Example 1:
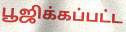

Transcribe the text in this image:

பூஜிக்கப்பட்ட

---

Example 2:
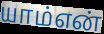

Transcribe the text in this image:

யாம்என்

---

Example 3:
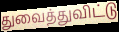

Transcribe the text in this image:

துவைத்துவிட்டு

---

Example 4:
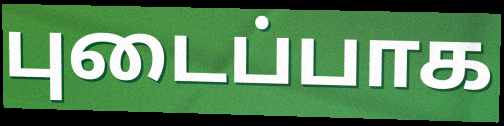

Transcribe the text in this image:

புடைப்பாக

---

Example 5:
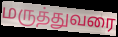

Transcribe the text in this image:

மருத்துவரை